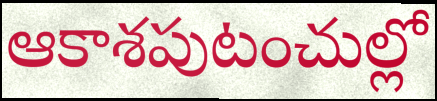
ఆకాశపుటంచుల్లో